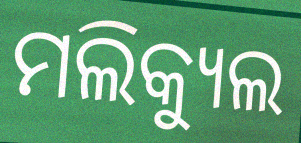
ମଲିକ୍ୟୁଲ